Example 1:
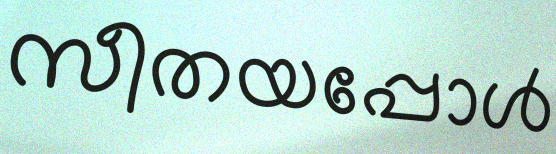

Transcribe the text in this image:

സീതയപ്പോൾ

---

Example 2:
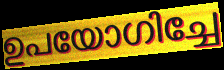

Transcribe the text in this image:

ഉപയോഗിച്ചേ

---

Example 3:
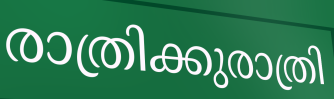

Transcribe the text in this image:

രാത്രിക്കുരാത്രി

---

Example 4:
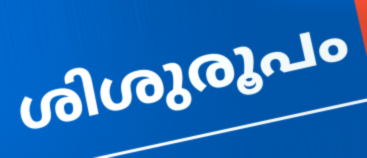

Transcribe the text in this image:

ശിശുരൂപം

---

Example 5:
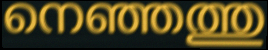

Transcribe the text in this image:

നെഞ്ഞത്തു